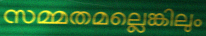
സമ്മതമല്ലെങ്കിലും